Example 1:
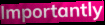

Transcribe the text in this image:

Importantly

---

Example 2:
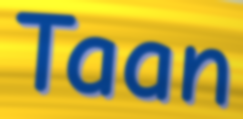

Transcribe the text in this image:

Taan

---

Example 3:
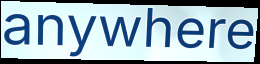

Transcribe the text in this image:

anywhere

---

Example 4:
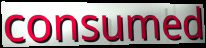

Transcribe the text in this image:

consumed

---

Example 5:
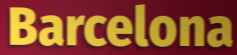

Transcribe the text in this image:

Barcelona